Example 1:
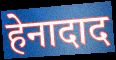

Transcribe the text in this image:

हेनादाद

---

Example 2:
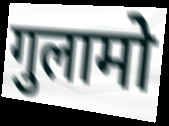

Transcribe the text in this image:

गुलामो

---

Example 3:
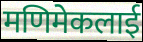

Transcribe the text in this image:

मणिमेकलाई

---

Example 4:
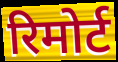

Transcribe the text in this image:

रिमोर्ट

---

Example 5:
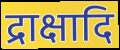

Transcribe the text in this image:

द्राक्षादि